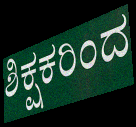
ಶಿಕ್ಷಕರಿಂದ